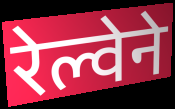
रेल्वेने